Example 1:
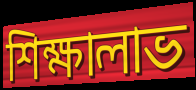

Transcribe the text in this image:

শিক্ষালাভ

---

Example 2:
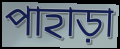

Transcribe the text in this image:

পাহাড়া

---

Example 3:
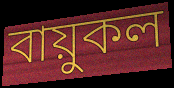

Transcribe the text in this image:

বায়ুকল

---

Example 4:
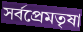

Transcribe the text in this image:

সর্বপ্রেমতৃষা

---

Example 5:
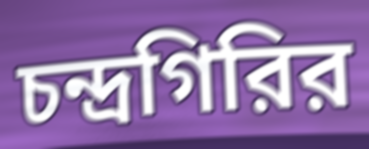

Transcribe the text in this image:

চন্দ্রগিরির